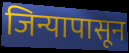
जिन्यापासून